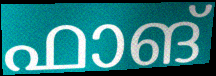
ഫാങ്